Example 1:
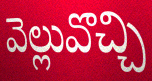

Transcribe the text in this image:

వెల్లువొచ్చి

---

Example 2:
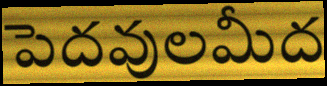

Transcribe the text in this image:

పెదవులమీద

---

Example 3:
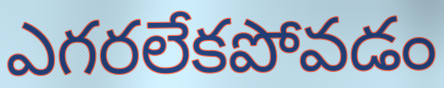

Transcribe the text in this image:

ఎగరలేకపోవడం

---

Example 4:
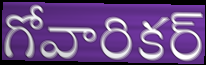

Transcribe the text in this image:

గోవారికర్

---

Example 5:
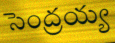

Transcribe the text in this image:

సెంద్రయ్య